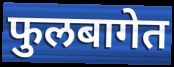
फुलबागेत